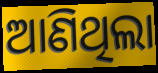
ଆଣିଥିଲା